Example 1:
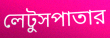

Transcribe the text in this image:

লেটুসপাতার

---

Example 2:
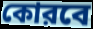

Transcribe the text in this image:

কোরবে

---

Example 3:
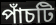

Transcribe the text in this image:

পাঁচটি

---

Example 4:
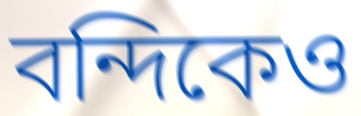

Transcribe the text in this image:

বন্দিকেও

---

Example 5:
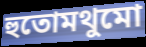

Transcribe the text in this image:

হুতোমথুমো